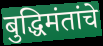
बुद्धिमंतांचे